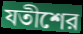
যতীশের